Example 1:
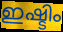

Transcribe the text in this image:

ഇഷ്ടിം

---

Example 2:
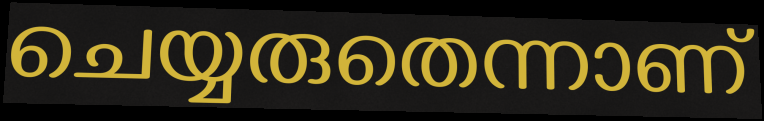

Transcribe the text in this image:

ചെയ്യരുതെന്നാണ്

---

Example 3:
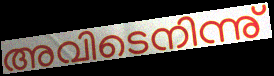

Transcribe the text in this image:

അവിടെനിന്നു്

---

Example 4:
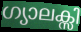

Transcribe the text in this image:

ഗ്യാലക്സി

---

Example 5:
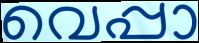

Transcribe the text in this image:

വെപ്പാ